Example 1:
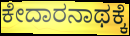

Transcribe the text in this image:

ಕೇದಾರನಾಥಕ್ಕೆ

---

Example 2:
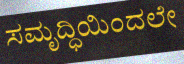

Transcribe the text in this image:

ಸಮೃದ್ಧಿಯಿಂದಲೇ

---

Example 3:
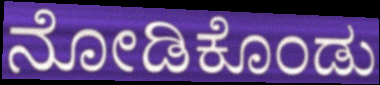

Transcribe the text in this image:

ನೋಡಿಕೊಂಡು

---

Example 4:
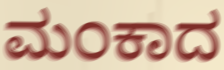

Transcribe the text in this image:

ಮಂಕಾದ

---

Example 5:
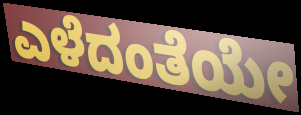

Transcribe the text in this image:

ಎಳೆದಂತೆಯೇ